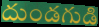
దుండగుడి